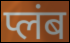
प्लंब